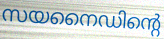
സയനൈഡിന്റെ